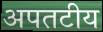
अपतटीय